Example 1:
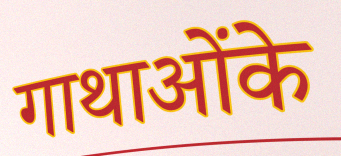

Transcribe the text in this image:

गाथाओंके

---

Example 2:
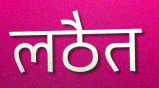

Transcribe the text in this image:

लठैत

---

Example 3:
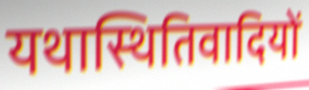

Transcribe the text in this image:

यथास्थितिवादियों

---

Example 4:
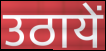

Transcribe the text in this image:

उठायें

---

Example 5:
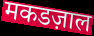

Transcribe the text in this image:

मकडज़ाल